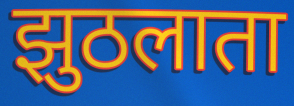
झुठलाता